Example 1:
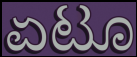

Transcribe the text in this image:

ಏಟೂ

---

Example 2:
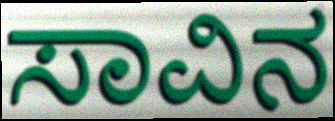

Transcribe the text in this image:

ಸಾವಿನ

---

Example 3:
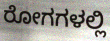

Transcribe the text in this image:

ರೋಗಗಳಲ್ಲಿ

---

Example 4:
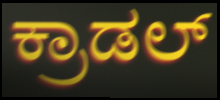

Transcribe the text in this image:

ಕ್ರಾಡಲ್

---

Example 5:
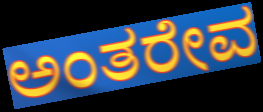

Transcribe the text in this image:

ಅಂತರೇವ